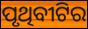
ପୃଥିବୀଟିର